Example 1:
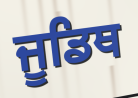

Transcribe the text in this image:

ਜੂਡਿਥ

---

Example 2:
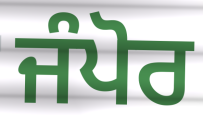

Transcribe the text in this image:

ਜੰਪੋਰ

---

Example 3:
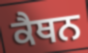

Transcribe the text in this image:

ਕੈਥਨ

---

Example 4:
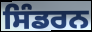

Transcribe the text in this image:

ਸਿੰਡਰਨ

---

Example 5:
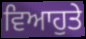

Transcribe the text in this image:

ਵਿਆਹੁਤੇ